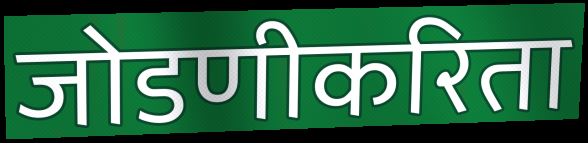
जोडणीकरिता